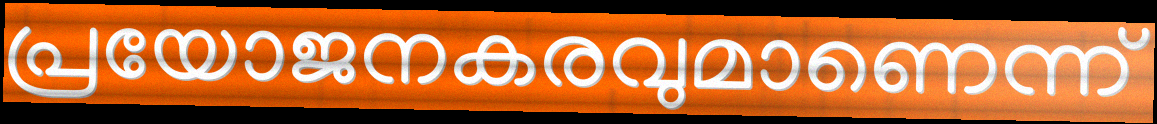
പ്രയോജനകരവുമാണെന്ന്